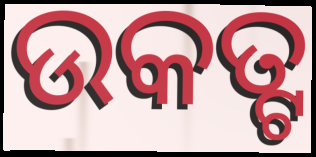
ଉକତ୍ଟ